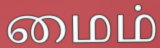
மைம்